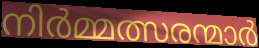
നിർമ്മത്സരന്മാർ